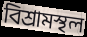
বিশ্রামস্থল